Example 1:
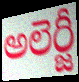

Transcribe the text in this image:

అలెర్జీ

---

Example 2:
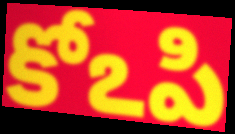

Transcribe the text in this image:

కోఽపి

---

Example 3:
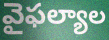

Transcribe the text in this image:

వైఫల్యాల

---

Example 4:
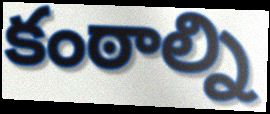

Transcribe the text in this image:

కంఠాల్ని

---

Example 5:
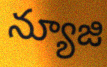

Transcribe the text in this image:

న్యూజి